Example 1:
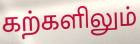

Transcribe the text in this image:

கற்களிலும்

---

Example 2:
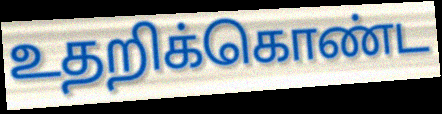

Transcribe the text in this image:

உதறிக்கொண்ட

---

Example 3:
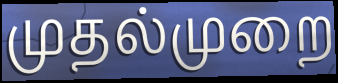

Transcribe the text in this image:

முதல்முறை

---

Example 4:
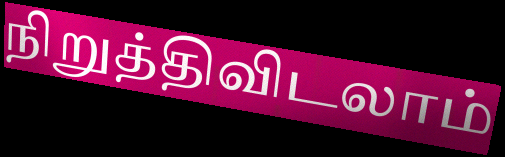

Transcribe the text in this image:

நிறுத்திவிடலாம்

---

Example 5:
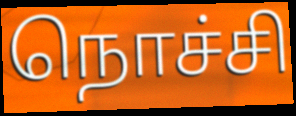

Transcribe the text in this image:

நொச்சி